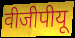
वीजीपीयू